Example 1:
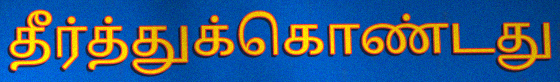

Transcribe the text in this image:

தீர்த்துக்கொண்டது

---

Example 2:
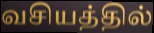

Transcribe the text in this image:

வசியத்தில்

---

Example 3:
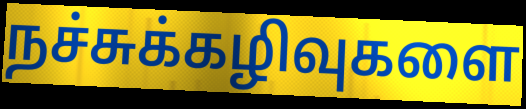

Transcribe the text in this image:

நச்சுக்கழிவுகளை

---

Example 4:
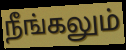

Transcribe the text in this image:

நீங்கலும்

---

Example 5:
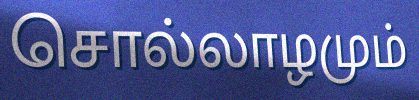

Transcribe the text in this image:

சொல்லாழமும்